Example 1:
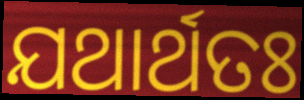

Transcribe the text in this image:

ଯଥାର୍ଥତଃ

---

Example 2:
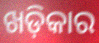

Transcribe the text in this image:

ଖଡ଼ିକାର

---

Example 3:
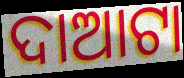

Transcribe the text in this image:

ଦାଆଟା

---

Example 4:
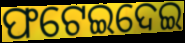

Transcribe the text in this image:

ଫଟେଇଦେଇ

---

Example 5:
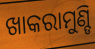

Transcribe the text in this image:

ଖାକରାମୁଣ୍ଡି